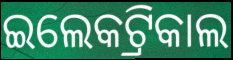
ଇଲେକଟ୍ରିକାଲ